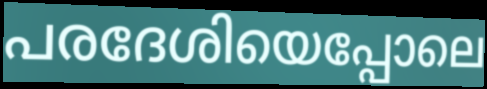
പരദേശിയെപ്പോലെ